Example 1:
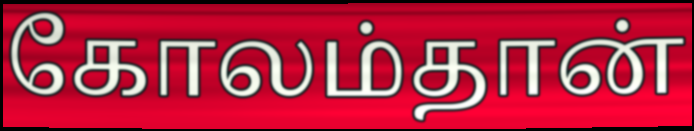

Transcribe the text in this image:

கோலம்தான்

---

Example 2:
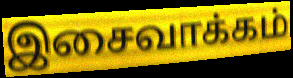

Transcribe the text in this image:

இசைவாக்கம்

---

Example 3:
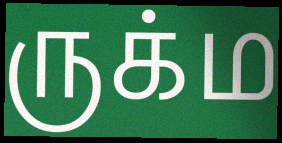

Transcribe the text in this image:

ருக்ம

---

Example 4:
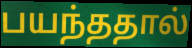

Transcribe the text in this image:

பயந்ததால்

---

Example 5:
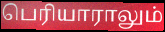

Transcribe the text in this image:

பெரியாராலும்